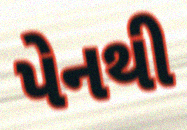
પેનથી